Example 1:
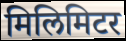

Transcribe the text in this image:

मिलिमिटर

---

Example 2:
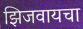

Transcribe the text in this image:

झिजवायचा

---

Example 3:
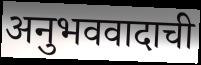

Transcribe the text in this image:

अनुभववादाची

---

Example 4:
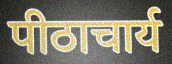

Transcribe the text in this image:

पीठाचार्य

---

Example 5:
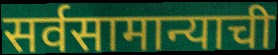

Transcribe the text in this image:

सर्वसामान्याची